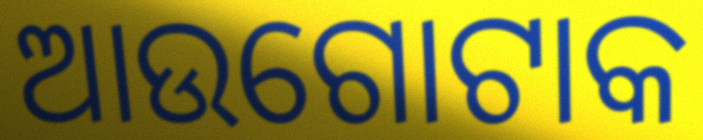
ଆଉଗୋଟାକ